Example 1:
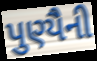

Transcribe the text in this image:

પુણ્યૈની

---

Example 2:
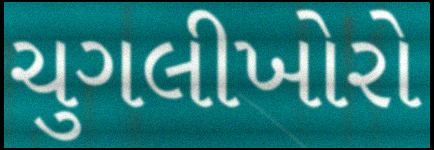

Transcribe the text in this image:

ચુગલીખોરો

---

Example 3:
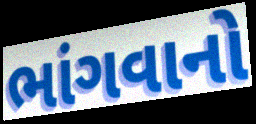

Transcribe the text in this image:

ભાંગવાનો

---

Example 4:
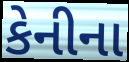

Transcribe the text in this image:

કેનીના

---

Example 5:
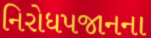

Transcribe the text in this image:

નિરોધપજાનના